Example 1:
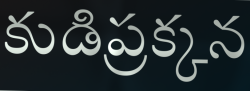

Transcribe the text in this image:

కుడిప్రక్కన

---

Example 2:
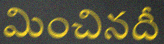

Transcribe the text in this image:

మించినదీ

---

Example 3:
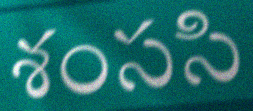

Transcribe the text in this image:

శంససి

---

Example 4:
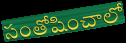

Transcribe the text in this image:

సంతోషించాలో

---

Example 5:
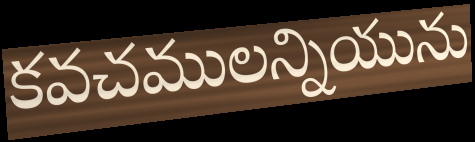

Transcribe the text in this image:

కవచములన్నియును